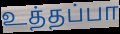
உத்தப்பா